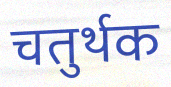
चतुर्थक